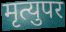
मृत्युपर